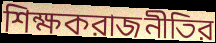
শিক্ষকরাজনীতির